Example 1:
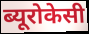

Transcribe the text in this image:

ब्यूरोकेसी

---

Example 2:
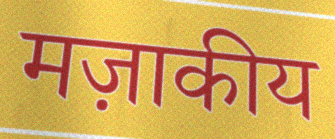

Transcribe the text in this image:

मज़ाकीय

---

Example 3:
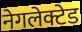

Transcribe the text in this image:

नेगलेक्टेड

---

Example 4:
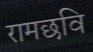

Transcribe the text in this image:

रामछवि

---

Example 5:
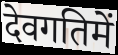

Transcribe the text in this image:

देवगतिमें